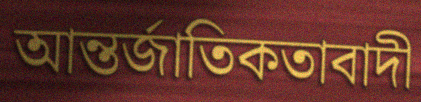
আন্তর্জাতিকতাবাদী